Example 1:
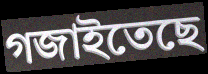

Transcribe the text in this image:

গজাইতেছে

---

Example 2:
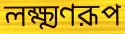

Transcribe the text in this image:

লক্ষ্মণরূপ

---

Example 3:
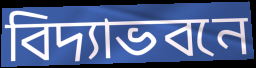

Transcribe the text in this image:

বিদ্যাভবনে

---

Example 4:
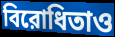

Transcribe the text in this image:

বিরোধিতাও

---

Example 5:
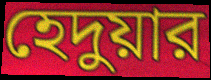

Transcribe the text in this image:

হেদুয়ার